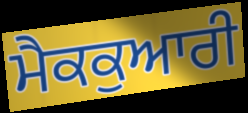
ਮੈਕਕੁਆਰੀ